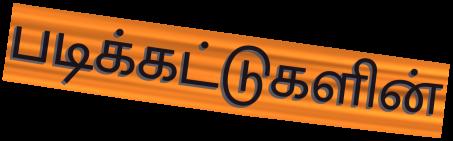
படிக்கட்டுகளின்